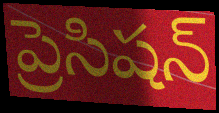
ప్రెసిషన్